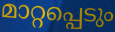
മാറ്റപ്പെടും